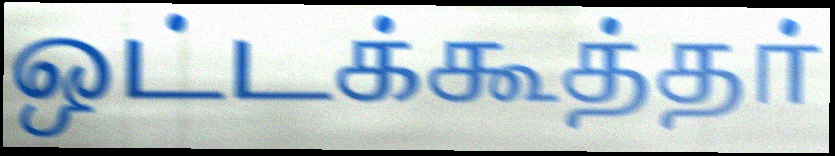
ஒட்டக்கூத்தர்